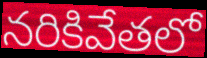
నరికివేతలో